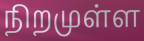
நிறமுள்ள